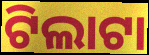
ଟିଲାଟା